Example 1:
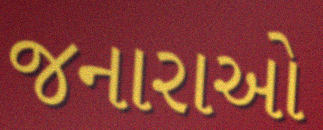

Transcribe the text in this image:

જનારાઓ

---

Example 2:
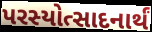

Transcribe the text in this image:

પરસ્યોત્સાદનાર્થં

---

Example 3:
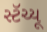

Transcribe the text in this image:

સ્ટૅચ્યૂ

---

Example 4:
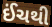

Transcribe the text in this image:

ઈંચથી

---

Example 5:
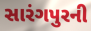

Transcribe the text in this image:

સારંગપુરની